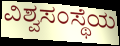
ವಿಶ್ವಸಂಸ್ಥೆಯ